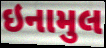
ઇનામુલ